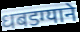
धबडग्याने